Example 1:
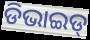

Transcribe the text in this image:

ଡିଭାଇଡ୍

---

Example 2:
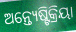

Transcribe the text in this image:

ଅନ୍ତ୍ୟେଷ୍ଟିକ୍ରିୟା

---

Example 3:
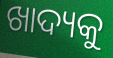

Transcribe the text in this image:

ଖାଦ୍ୟକୁ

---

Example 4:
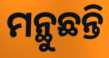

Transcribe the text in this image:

ମନ୍ଥୁଛନ୍ତି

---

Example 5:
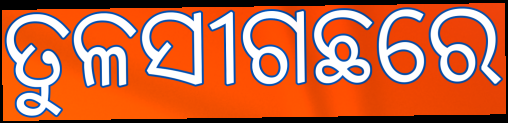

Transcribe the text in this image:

ତୁଳସୀଗଛରେ